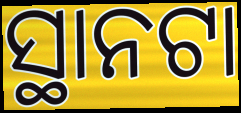
ସ୍ଥାନଟା